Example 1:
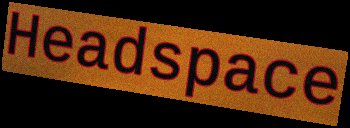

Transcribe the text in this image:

Headspace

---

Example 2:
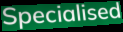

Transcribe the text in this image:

Specialised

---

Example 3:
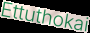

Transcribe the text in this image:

Ettuthokai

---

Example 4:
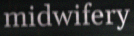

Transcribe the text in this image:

midwifery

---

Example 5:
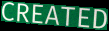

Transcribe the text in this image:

CREATED